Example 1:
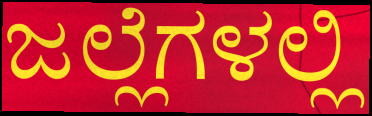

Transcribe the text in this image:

ಜಲ್ಲೆಗಳಲ್ಲಿ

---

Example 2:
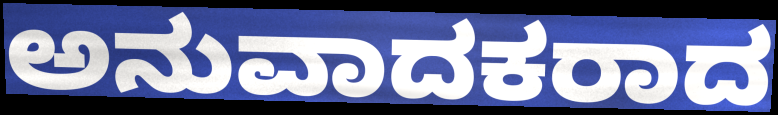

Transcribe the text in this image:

ಅನುವಾದಕರಾದ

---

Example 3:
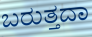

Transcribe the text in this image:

ಬರುತ್ತದಾ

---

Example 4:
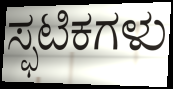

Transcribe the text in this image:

ಸ್ಫಟಿಕಗಳು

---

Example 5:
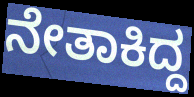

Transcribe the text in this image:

ನೇತಾಕಿದ್ದ